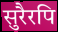
सुरैरपि